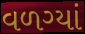
વળગ્યાં